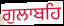
ਗੁਲਾਬਹਿ